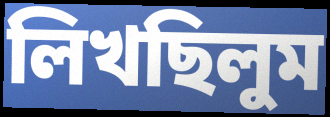
লিখছিলুম